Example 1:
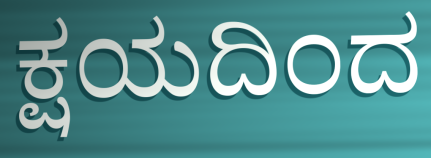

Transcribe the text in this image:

ಕ್ಷಯದಿಂದ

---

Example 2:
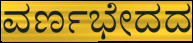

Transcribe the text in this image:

ವರ್ಣಭೇದದ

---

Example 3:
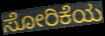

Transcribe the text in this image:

ಸೋರಿಕೆಯ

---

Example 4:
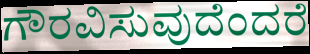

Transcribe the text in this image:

ಗೌರವಿಸುವುದೆಂದರೆ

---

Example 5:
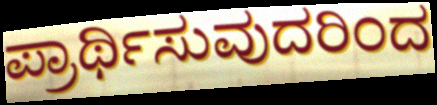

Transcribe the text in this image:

ಪ್ರಾರ್ಥಿಸುವುದರಿಂದ